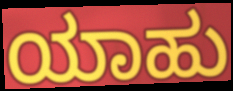
ಯಾಹು